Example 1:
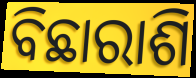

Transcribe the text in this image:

ବିଛାରାଶି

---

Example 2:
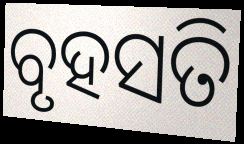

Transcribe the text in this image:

ବୃହସତି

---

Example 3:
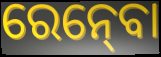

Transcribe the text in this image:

ରେନ୍‍ବୋ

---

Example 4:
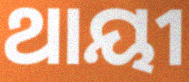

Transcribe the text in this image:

ଥାୟୀ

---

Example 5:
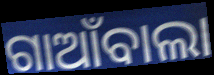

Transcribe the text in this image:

ଗାଆଁବାଲା